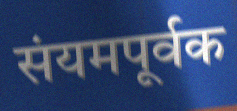
संयमपूर्वक